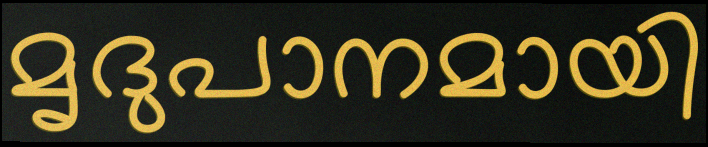
മൃദുപാനമായി